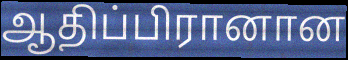
ஆதிப்பிரானான